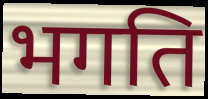
भगति